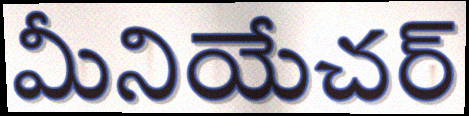
మీనియేచర్